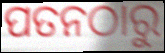
ପତନଠାରୁ